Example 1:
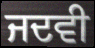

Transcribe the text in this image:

ਜਦਵੀ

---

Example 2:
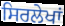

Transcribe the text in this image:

ਸਿਰਲੇਖਾਂ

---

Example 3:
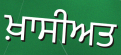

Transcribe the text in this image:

ਖ਼ਾਸੀਅਤ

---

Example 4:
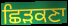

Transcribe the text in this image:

ਛਿੜਕਣਾ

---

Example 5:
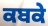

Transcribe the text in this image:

ਕਬਕੇ